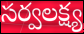
సర్వలక్ష్య